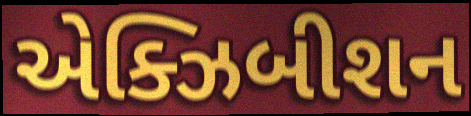
એક્ઝિબીશન